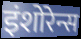
इंशोरेन्स